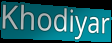
Khodiyar